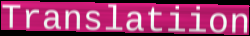
Translatiion